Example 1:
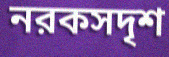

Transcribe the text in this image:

নরকসদৃশ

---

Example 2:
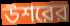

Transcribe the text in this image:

উশরের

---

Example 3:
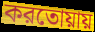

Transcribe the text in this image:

করতোয়ায়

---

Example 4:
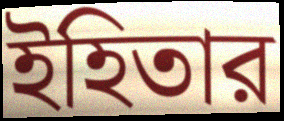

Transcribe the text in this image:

ইহিতার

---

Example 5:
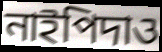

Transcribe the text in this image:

নাইপিদাও